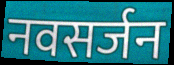
नवसर्जन